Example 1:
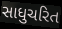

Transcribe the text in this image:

સાધુચરિત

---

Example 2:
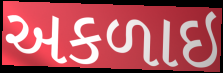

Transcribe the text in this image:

અકળાઇ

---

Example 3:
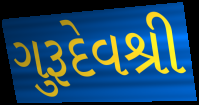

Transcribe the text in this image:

ગુરૂદેવશ્રી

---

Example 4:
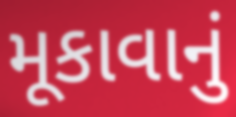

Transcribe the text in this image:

મૂકાવાનું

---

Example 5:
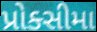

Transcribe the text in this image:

પ્રોક્સીમા